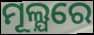
ମୂଲ୍ଯରେ